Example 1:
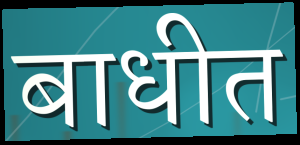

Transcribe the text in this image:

बाधीत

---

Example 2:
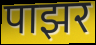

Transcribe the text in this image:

पाझर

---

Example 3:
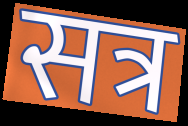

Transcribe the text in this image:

सत्र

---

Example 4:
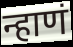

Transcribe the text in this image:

न्हाणं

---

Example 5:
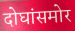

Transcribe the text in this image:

दोघांसमोर